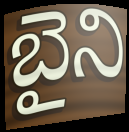
బైని